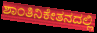
ಶಾಂತಿನಿಕೇತನದಲ್ಲಿ